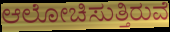
ಆಲೋಚಿಸುತ್ತಿರುವೆ